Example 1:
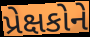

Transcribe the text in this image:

પ્રેક્ષકોને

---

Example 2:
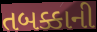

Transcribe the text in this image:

તબક્કાની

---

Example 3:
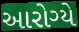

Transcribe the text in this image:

આરોગ્યે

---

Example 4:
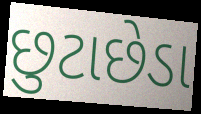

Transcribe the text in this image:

છુટાછેડા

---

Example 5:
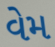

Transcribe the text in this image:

વેમ